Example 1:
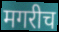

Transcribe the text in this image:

मगरीच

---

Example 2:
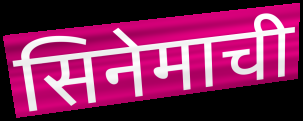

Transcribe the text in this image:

सिनेमाची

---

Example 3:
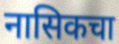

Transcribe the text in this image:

नासिकचा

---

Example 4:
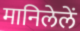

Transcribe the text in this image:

मानिलेलें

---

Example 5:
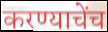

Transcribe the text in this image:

करण्याचेंच